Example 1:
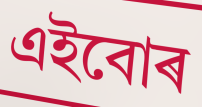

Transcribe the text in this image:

এইবোৰ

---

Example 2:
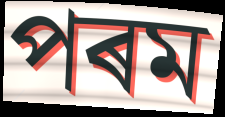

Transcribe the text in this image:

পৰম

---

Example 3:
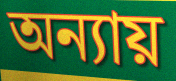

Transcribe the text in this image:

অন্যায়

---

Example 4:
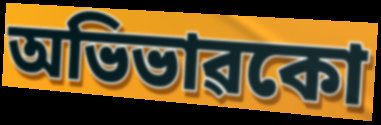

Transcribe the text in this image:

অভিভাৱকো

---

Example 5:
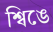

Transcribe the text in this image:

শ্বিঙে